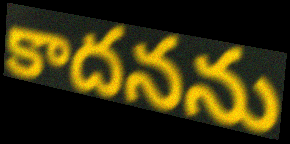
కాదనను